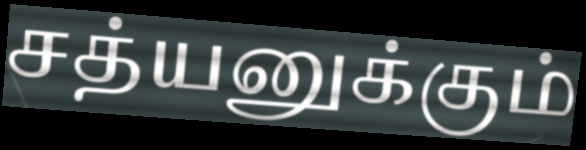
சத்யனுக்கும்